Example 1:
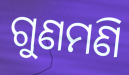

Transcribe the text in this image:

ଗୁଣମଣି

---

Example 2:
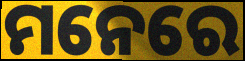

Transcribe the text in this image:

ମନେରେ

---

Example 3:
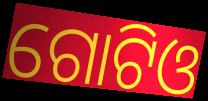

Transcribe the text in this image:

ଗୋଟିଓ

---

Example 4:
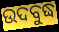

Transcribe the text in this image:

ଉଦବୁଦ୍ଧ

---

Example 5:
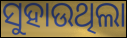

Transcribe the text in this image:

ସୁହାଉଥିଲା